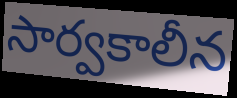
సార్వకాలీన